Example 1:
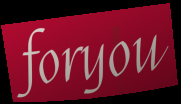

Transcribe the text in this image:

foryou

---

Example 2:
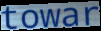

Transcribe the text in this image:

towar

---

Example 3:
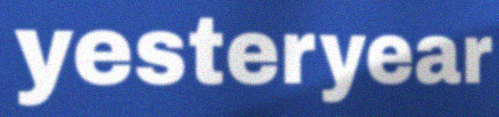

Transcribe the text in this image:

yesteryear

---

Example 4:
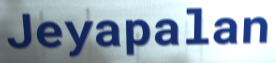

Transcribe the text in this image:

Jeyapalan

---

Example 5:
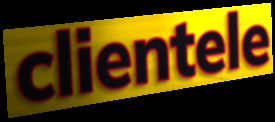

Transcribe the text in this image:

clientele